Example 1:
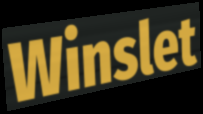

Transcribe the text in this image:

Winslet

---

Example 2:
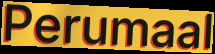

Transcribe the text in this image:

Perumaal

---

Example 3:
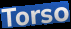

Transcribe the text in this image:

Torso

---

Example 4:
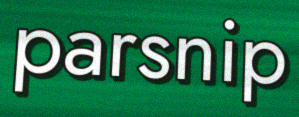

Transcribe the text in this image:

parsnip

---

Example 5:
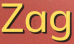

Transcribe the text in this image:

Zag